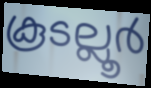
കൂടല്ലൂർ